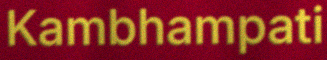
Kambhampati